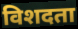
विशदता